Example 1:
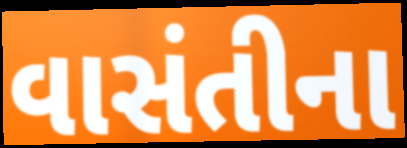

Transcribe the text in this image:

વાસંતીના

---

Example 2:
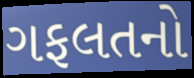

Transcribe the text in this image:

ગફલતનો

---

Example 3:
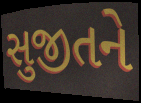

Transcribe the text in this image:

સુજીતને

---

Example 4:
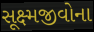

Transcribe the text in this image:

સૂક્ષ્મજીવોના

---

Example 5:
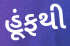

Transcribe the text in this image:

હૂંફથી